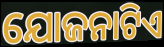
ଯୋଜନାଟିଏ